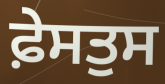
ਫ਼ੇਸਤੁਸ